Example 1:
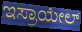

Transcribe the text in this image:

ಇಸ್ರಾಯೇಲ್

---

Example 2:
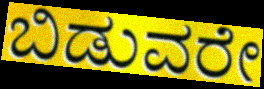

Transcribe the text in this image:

ಬಿಡುವರೇ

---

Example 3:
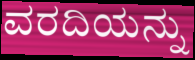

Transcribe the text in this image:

ವರದಿಯನ್ನು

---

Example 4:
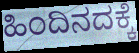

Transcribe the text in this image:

ಹಿಂದಿನದಕ್ಕೆ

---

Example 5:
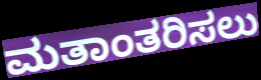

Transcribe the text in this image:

ಮತಾಂತರಿಸಲು